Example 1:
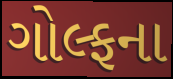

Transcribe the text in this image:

ગોલ્ફના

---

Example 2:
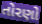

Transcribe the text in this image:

તોરણો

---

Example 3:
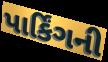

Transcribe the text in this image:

પાર્કિંગની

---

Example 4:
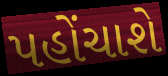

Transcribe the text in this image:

પહોંચાશે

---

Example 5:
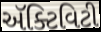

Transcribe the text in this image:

ઍક્ટિવિટી